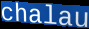
chalau